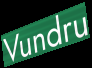
Vundru